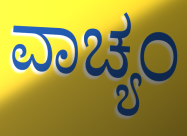
ವಾಚ್ಯಂ